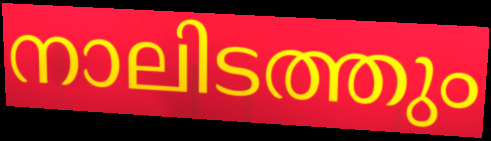
നാലിടത്തും